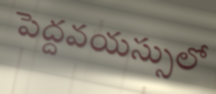
పెద్దవయస్సులో